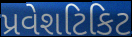
પ્રવેશટિકિટ